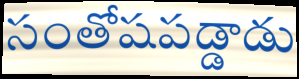
సంతోషపడ్డాడు